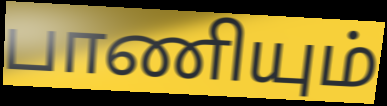
பாணியும்